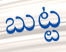
బుట్ట